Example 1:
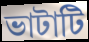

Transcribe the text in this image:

ভাটাটি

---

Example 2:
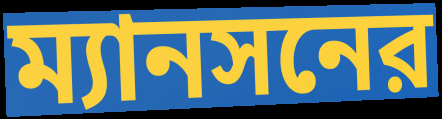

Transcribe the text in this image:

ম্যানসনের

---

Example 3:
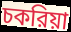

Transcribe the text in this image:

চকরিয়া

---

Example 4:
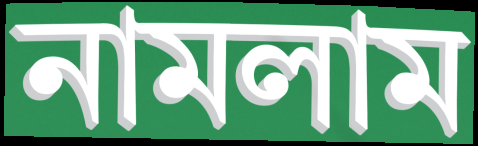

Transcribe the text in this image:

নামলাম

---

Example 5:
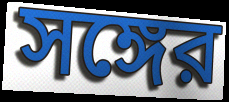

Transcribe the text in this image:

সঙ্গের